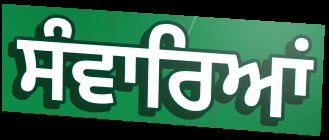
ਸੰਵਾਰਿਆਂ